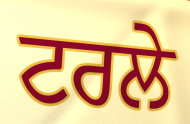
ਟਰਲੇ